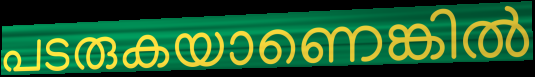
പടരുകയാണെങ്കിൽ